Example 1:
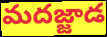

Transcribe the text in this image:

మదజ్జాడ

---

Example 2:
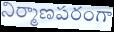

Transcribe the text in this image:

నిర్మాణపరంగా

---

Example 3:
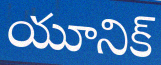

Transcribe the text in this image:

యూనిక్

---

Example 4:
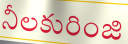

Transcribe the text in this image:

నీలకురింజి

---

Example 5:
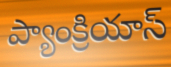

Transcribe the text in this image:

ప్యాంక్రియాస్